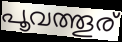
പൂവത്തൂര്